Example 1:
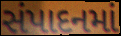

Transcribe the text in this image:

સંપાદનમાં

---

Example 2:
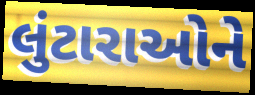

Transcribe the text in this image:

લુંટારાઓને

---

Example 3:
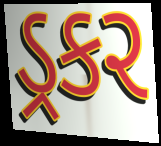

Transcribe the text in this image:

ડ્રકર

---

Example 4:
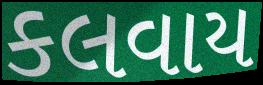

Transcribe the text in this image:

કલવાય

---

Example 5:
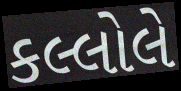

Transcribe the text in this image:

કલ્લોલે